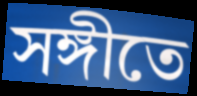
সঙ্গীতে